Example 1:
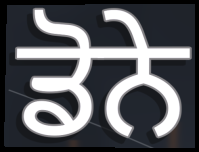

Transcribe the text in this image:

ਡੋਨੇ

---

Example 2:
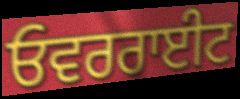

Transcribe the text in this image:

ਓਵਰਰਾਈਟ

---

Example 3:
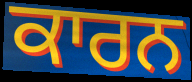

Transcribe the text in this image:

ਕਾਰਨ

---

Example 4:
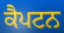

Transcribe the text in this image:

ਕੈਪਟਨ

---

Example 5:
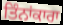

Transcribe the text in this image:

ਤਿੰਨਾਂਕਾਰਾ